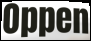
Oppen